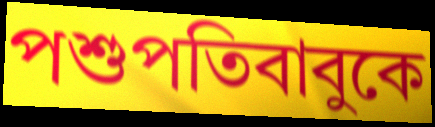
পশুপতিবাবুকে